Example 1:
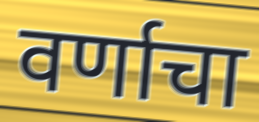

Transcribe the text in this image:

वर्णाचा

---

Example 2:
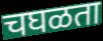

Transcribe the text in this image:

चघळता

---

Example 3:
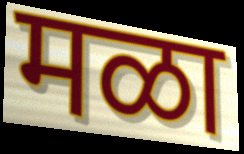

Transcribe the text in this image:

मळा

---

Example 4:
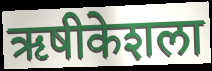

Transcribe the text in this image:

ऋषीकेशला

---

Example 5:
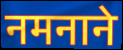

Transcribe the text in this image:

नमनाने